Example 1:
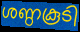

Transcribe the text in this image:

ശണ്ഠകൂടി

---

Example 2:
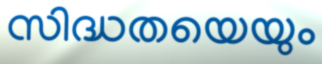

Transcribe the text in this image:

സിദ്ധതയെയും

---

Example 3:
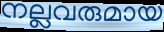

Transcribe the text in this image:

നല്ലവരുമായ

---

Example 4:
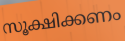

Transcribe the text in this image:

സൂക്ഷിക്കണം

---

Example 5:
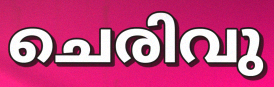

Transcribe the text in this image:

ചെരിവു